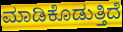
ಮಾಡಿಕೊಡುತ್ತಿದೆ